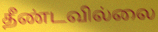
தீண்டவில்லை